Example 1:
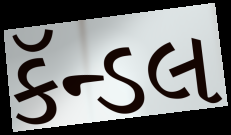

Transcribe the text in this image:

કૅન્ડલ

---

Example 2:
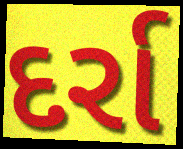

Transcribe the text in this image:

દર્રા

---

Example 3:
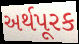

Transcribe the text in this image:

અર્થપૂરક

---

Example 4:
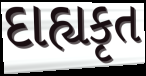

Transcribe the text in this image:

દાહ્યકૃત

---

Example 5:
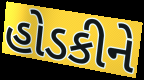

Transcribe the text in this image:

હોડકીને